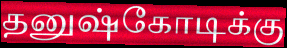
தனுஷ்கோடிக்கு